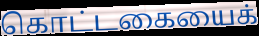
கொட்டகையைக்